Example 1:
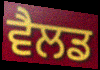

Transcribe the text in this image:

ਵੈਲਡ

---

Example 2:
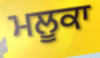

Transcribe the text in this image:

ਮਲੂਕਾ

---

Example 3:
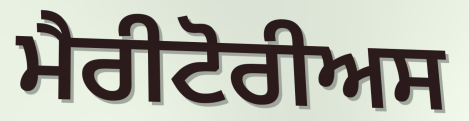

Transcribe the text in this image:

ਮੈਰੀਟੋਰੀਅਸ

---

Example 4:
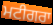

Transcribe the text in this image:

ਮਟੀਗਰਾ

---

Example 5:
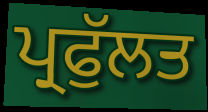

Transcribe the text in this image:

ਪ੍ਰਫੁੱਲਤ